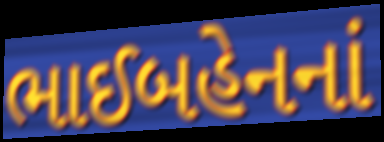
ભાઈબહેનનાં